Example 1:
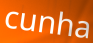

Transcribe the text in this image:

cunha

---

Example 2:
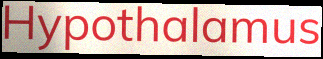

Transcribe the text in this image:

Hypothalamus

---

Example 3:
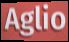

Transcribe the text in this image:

Aglio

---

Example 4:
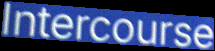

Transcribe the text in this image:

Intercourse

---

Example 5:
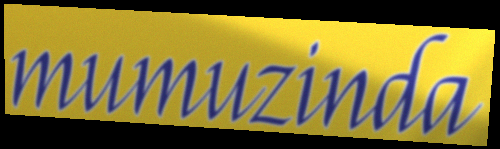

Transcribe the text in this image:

mumuzinda